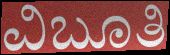
ವಿಬೂತಿ